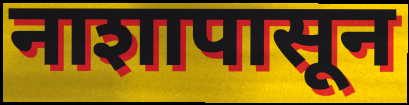
नाशापासून